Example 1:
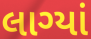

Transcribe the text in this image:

લાગ્યાં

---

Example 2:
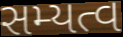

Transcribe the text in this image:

સમ્યત્વ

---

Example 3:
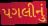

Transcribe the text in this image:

પગલીનું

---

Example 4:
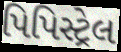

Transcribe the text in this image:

પિપિસ્ટ્રેલ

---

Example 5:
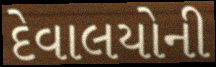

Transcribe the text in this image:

દેવાલયોની